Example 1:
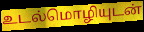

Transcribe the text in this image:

உடல்மொழியுடன்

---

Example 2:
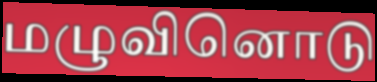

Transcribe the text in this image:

மழுவினொடு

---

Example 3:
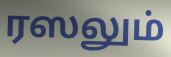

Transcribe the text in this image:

ரஸலும்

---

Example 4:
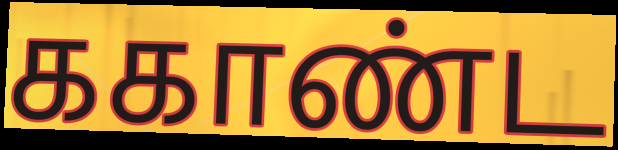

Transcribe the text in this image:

ககாண்ட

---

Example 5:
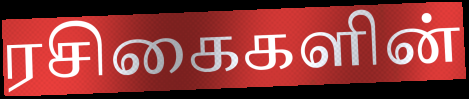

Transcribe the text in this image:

ரசிகைகளின்